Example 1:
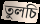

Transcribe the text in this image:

তুলচি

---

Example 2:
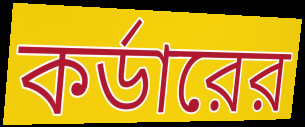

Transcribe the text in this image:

কর্ডারের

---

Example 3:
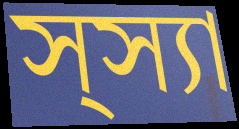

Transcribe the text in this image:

স্স্যা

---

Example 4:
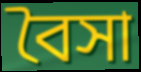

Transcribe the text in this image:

বৈসা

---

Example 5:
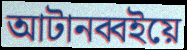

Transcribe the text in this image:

আটানব্বইয়ে